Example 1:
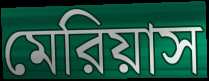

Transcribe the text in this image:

মেরিয়াস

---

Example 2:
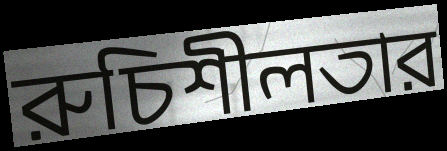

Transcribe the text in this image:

রুচিশীলতার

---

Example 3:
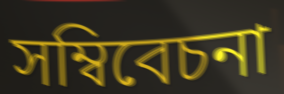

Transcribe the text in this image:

সম্বিবেচনা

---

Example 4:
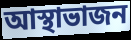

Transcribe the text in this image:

আস্থাভাজন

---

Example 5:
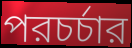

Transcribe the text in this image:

পরচর্চার